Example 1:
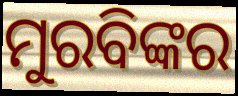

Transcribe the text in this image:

ମୁରବିଙ୍କର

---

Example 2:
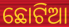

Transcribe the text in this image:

ଛୋଟିଆ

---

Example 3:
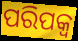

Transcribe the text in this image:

ପରିପକ୍ବ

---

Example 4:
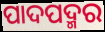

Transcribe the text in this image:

ପାଦପଦ୍ମର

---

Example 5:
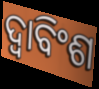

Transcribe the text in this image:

ଦ୍ୱାବିଂଶ